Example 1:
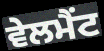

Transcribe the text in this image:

ਵੇਲਮੈਂਟ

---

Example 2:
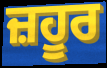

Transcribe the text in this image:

ਜ਼ਹੂਰ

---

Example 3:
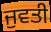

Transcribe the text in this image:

ਜੁਵਤੀ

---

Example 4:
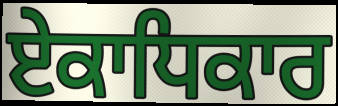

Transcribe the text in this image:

ਏਕਾਧਿਕਾਰ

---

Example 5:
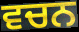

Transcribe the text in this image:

ਵਚਨ